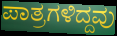
ಪಾತ್ರಗಳಿದ್ದವು